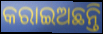
କରାଇଅଛନ୍ତି